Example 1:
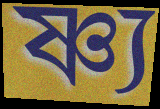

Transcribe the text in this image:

ষ্ণ্য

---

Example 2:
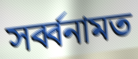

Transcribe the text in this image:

সৰ্ব্বনামত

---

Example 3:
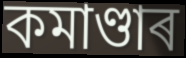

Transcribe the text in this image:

কমাণ্ডাৰ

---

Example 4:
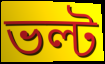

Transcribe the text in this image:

ভল্ট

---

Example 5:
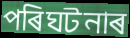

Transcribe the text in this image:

পৰিঘটনাৰ